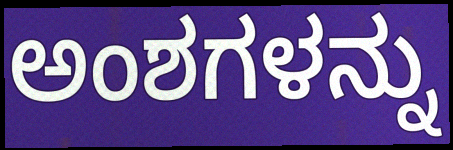
ಅಂಶಗಳನ್ನು